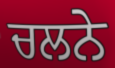
ਚਲਨੇ